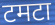
टमटा